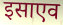
इसाएव